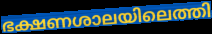
ഭക്ഷണശാലയിലെത്തി